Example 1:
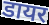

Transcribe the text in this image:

डायर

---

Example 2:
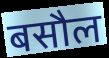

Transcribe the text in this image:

बसौल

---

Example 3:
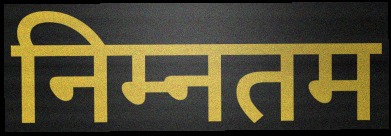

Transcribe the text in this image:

निम्नतम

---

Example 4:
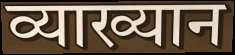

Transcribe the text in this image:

व्‍याख्‍यान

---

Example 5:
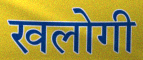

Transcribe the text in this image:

खलोगी